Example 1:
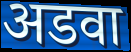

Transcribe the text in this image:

अडवा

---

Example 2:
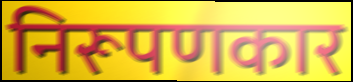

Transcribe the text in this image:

निरूपणकार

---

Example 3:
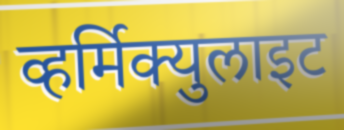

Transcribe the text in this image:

व्हर्मिक्युलाइट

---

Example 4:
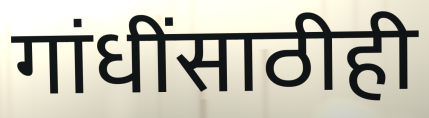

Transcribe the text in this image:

गांधींसाठीही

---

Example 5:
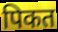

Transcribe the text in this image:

पिकत